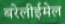
बरेलीईमेल